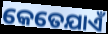
କେତେଯାଏଁ